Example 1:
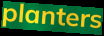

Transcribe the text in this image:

planters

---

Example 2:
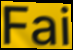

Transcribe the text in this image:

Fai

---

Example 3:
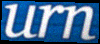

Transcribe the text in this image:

urn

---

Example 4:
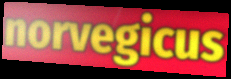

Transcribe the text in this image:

norvegicus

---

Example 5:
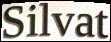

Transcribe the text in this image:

Silvat